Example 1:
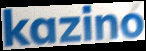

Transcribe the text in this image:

kazino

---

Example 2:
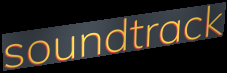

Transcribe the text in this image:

soundtrack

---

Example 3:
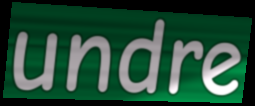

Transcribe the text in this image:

undre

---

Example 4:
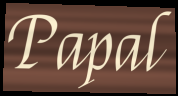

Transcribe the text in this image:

Papal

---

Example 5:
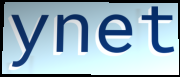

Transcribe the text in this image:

ynet